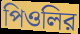
পিওলির